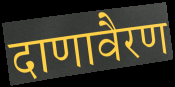
दाणावैरण